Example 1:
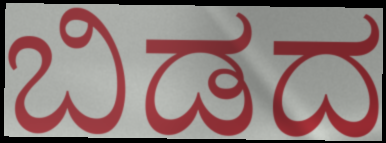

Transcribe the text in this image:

ಬಿಡದ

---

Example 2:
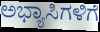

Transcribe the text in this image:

ಅಭ್ಯಾಸಿಗಳಿಗೆ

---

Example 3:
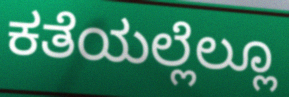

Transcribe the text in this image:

ಕತೆಯಲ್ಲೆಲ್ಲೂ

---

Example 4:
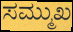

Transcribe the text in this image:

ಸಮ್ಮುಖ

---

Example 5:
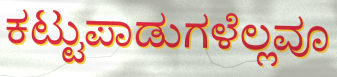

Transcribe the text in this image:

ಕಟ್ಟುಪಾಡುಗಳೆಲ್ಲವೂ